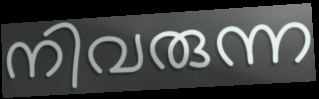
നിവരുന്ന